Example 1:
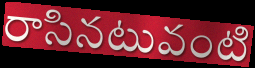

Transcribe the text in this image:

రాసినటువంటి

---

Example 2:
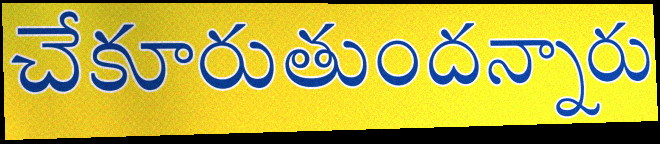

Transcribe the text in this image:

చేకూరుతుందన్నారు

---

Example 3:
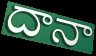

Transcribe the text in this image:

దానా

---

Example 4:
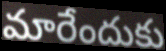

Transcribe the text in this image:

మారేందుకు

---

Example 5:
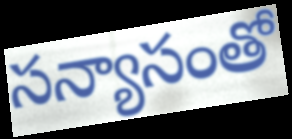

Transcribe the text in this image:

సన్యాసంతో